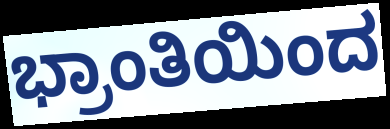
ಭ್ರಾಂತಿಯಿಂದ